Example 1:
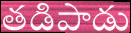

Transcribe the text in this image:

తడిపాడు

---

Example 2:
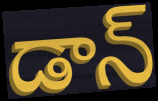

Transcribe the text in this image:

డాన్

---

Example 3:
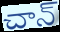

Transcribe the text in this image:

చాన్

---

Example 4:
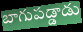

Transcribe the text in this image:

బాగుపడ్డాడు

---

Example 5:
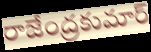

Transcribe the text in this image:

రాజేంద్రకుమార్